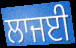
ਲਾਜਈ